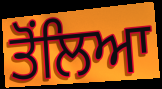
ਤੋਂਲਿਆ